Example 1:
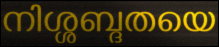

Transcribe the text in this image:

നിശ്ശബ്ദതയെ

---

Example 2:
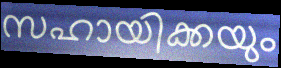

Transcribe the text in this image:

സഹായിക്കയും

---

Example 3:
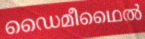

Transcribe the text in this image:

ഡൈമീഥൈൽ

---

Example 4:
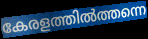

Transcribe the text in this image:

കേരളത്തിൽത്തന്നെ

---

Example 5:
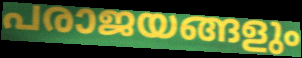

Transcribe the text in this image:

പരാജയങ്ങളും